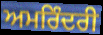
ਅਮਰਿੰਦਰੀ